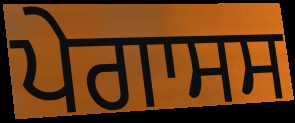
ਪੇਗਾਸਸ